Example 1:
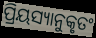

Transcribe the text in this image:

ପ୍ରିୟସ୍ୟାନୁକୃତଂ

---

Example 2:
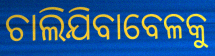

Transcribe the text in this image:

ଚାଲିଯିବାବେଳକୁ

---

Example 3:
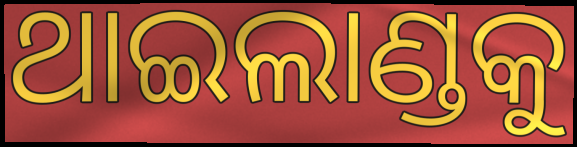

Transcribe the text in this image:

ଥାଇଲାଣ୍ଡକୁ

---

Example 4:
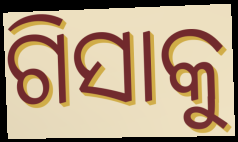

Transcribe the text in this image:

ଗିସାକୁ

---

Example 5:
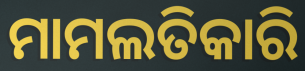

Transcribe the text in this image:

ମାମଲତିକାରି